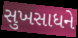
સુખસાધને